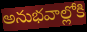
అనుభవాల్లోకి